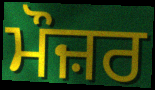
ਮੌਜ਼ਰ